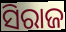
ସିରାଜ